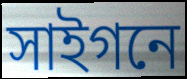
সাইগনে